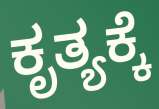
ಕೃತ್ಯಕ್ಕೆ